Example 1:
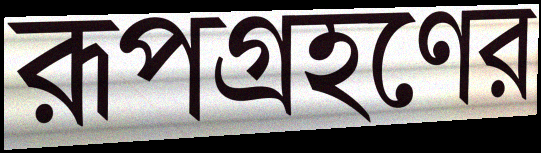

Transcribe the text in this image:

রূপগ্রহণের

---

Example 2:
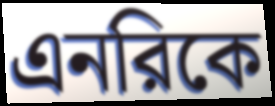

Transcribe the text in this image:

এনরিকে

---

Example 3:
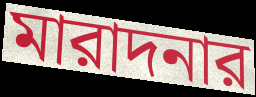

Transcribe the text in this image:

মারাদনার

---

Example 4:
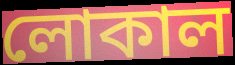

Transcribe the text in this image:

লোকাল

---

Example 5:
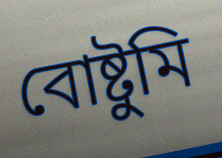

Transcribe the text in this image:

বোষ্টুমি